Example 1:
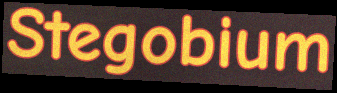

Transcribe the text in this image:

Stegobium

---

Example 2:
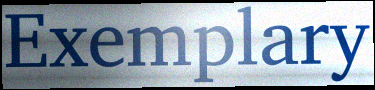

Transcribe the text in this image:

Exemplary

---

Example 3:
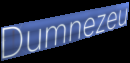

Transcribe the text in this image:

Dumnezeu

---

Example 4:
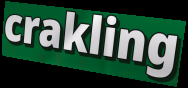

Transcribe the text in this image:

crakling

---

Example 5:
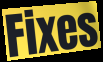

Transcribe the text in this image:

Fixes